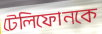
টেলিফোনকে